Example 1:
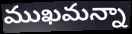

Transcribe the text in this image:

ముఖమన్నా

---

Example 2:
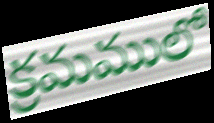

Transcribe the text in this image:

క్రమములో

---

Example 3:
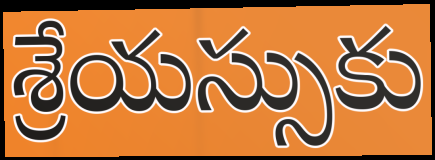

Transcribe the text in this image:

శ్రేయస్సుకు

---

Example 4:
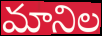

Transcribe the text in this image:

మానిల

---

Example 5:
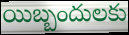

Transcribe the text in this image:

యిబ్బందులకు